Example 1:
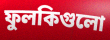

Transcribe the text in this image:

ফুলকিগুলো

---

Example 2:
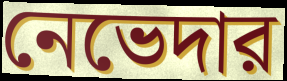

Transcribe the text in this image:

নেভেদার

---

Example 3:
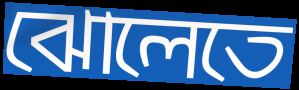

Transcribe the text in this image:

ঝোলেতে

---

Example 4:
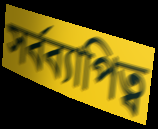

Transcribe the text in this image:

সর্বব্যাপিত্ব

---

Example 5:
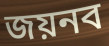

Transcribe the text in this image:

জয়নব